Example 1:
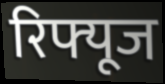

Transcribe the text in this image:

रिफ्यूज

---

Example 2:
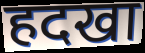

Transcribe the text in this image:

हदखा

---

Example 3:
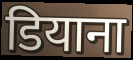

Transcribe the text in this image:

डियाना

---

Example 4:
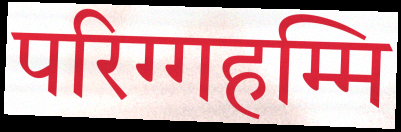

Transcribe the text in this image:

परिग्गहम्मि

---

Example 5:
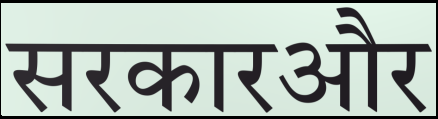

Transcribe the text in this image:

सरकारऔर